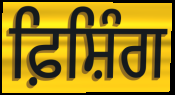
ਫ਼ਿਸ਼ਿੰਗ